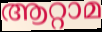
ആറ്റാമ